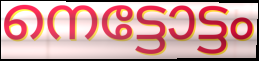
നെട്ടോട്ടം